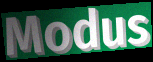
Modus